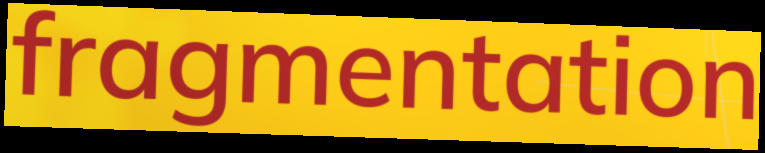
fragmentation